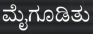
ಮೈಗೂಡಿತು